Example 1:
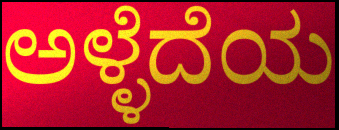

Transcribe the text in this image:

ಅಳ್ಳೆದೆಯ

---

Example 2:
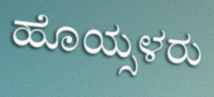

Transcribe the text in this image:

ಹೊಯ್ಸಳರು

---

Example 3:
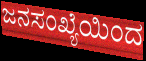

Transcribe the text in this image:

ಜನಸಂಖ್ಯೆಯಿಂದ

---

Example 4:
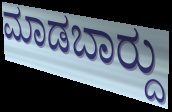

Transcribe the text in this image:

ಮಾಡಬಾರ್‍ದು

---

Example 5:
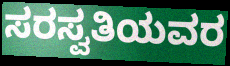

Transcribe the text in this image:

ಸರಸ್ವತಿಯವರ